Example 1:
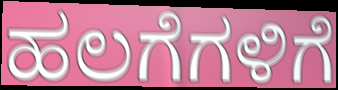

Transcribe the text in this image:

ಹಲಗೆಗಳಿಗೆ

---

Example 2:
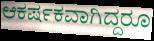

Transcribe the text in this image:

ಆಕರ್ಷಕವಾಗಿದ್ದರೂ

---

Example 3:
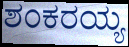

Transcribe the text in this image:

ಶಂಕರಯ್ಯ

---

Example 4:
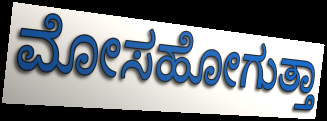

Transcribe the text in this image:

ಮೋಸಹೋಗುತ್ತಾ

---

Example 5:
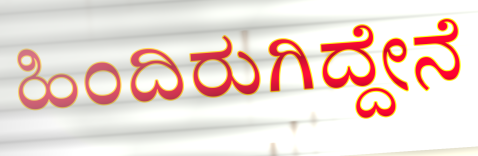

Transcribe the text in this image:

ಹಿಂದಿರುಗಿದ್ದೇನೆ